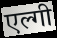
एल्गी